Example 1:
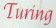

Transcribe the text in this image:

Turing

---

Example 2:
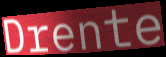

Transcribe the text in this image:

Drente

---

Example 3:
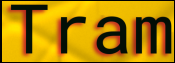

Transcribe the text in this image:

Tram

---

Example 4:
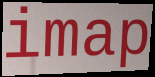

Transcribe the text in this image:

imap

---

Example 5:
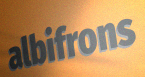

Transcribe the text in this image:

albifrons